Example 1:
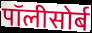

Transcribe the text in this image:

पॉलीसोर्ब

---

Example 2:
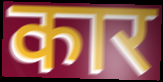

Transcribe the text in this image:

कार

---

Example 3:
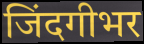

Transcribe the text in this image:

जिंदगीभर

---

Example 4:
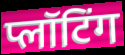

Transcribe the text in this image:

प्लॉटिंग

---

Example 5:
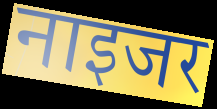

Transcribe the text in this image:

नाइजर